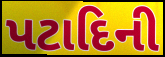
પટાદિની